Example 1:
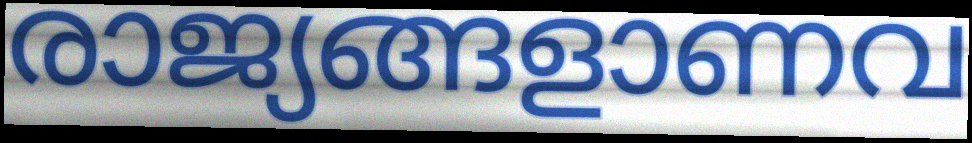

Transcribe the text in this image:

രാജ്യങ്ങളാണവ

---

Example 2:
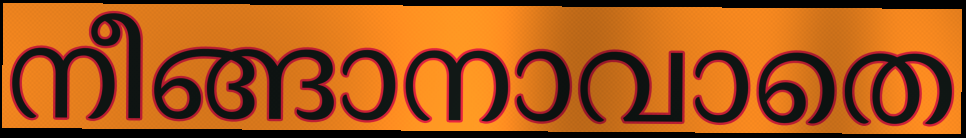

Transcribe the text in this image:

നീങ്ങാനാവാതെ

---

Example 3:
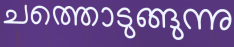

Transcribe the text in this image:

ചത്തൊടുങ്ങുന്നു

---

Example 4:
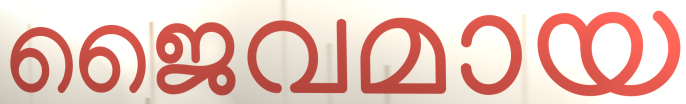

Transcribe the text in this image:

ജൈവമായ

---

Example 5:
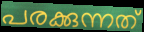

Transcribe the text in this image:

പരക്കുന്നത്